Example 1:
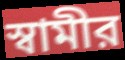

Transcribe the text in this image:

স্বামীর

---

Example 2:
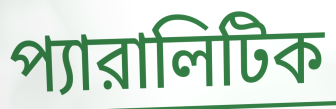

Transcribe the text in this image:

প্যারালিটিক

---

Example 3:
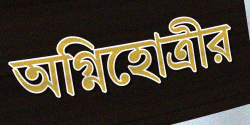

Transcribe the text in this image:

অগ্নিহোত্রীর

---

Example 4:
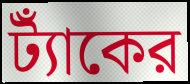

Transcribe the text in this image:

ট্যাঁকের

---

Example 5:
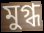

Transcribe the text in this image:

মুগ্ধ